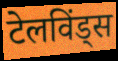
टेलविंड्स